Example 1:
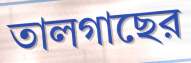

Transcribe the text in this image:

তালগাছের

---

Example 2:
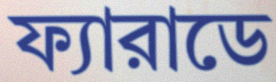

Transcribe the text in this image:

ফ্যারাডে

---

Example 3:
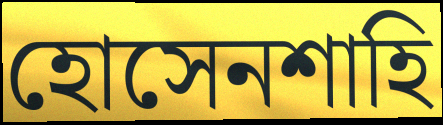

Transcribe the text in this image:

হোসেনশাহি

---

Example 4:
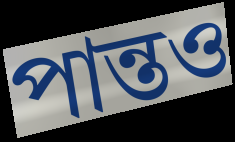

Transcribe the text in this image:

পান্তও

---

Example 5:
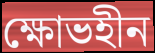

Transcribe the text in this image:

ক্ষোভহীন